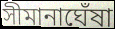
সীমানাঘেঁষা